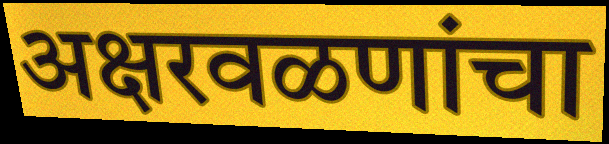
अक्षरवळणांचा